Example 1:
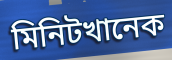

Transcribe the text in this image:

মিনিটখানেক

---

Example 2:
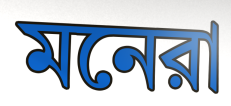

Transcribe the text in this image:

মনেরা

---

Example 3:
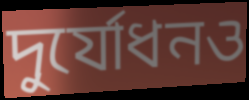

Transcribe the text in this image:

দুর্যোধনও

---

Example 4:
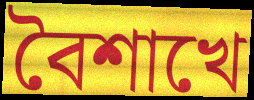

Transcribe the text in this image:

বৈশাখে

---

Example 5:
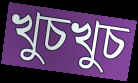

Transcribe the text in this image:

খুচখুচ